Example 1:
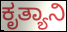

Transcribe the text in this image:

ಕೃತ್ಯಾನಿ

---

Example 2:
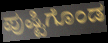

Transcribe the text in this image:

ಪುಷ್ಟಿಗೊಂಡ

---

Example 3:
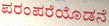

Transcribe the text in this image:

ಪರಂಪರೆಯೊಡನೆ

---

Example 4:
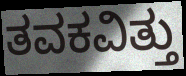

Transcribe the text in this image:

ತವಕವಿತ್ತು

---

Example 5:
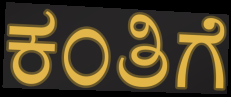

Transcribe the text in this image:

ಕಂತಿಗೆ